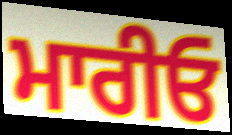
ਮਾਰੀਓ